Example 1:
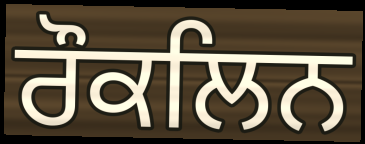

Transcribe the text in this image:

ਰੌਕਲਿਨ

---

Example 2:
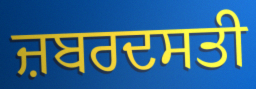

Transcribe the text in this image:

ਜ਼ਬਰਦਸਤੀ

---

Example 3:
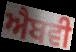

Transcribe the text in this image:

ਐਬਵੀ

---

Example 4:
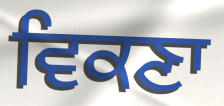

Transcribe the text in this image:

ਵਿਕਣਾ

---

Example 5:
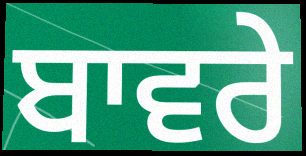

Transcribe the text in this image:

ਬਾਵਰੇ